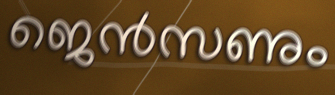
ജെൻസണും